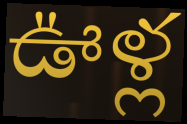
ఊళ్ల